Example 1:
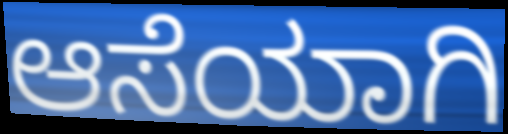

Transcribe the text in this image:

ಆಸೆಯಾಗಿ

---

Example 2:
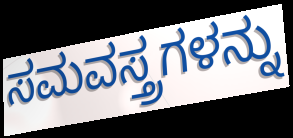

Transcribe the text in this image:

ಸಮವಸ್ತ್ರಗಳನ್ನು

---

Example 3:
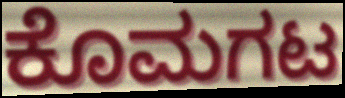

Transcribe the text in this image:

ಕೊಮಗಟ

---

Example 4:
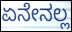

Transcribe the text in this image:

ಏನೇನಲ್ಲ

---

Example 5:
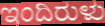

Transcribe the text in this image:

ಇಂದಿರುಳು